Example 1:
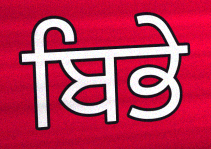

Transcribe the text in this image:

ਬਿਭੇ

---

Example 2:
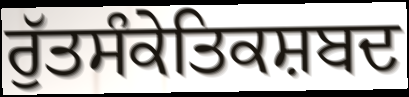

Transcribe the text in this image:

ਰੁੱਤਸੰਕੇਤਿਕਸ਼ਬਦ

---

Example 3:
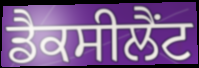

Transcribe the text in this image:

ਡੈਕਸੀਲੈਂਟ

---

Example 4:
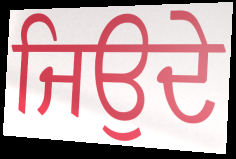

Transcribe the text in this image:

ਜਿਉਦੇ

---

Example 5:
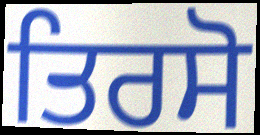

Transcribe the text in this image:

ਤਿਰਸੋ